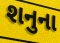
શનુના